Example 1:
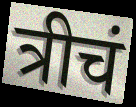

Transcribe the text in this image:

त्रीचं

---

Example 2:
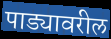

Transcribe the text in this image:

पाड्यावरील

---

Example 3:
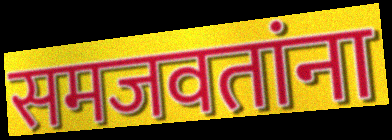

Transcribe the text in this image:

समजवतांना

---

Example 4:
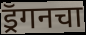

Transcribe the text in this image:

ड्रॅगनचा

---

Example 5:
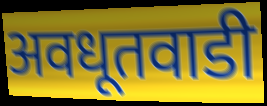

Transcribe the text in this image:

अवधूतवाडी